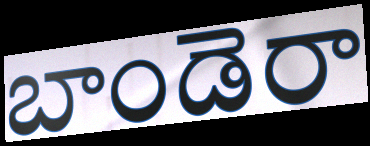
బాండెరా